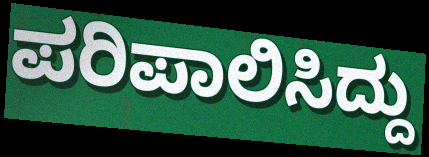
ಪರಿಪಾಲಿಸಿದ್ದು